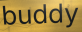
buddy